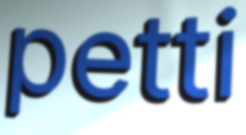
petti